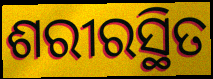
ଶରୀରସ୍ଥିତ